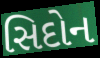
સિદોન